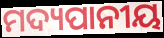
ମଦ୍ୟପାନୀୟ